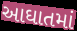
આઘાતમાં